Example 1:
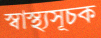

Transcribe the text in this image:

স্বাস্থ্যসূচক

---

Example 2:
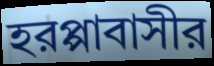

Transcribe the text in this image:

হরপ্পাবাসীর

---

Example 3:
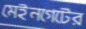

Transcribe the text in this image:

মেইনগেটের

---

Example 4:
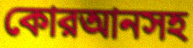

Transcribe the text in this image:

কোরআনসহ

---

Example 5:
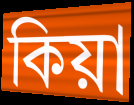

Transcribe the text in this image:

কিয়া